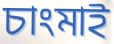
চাংমাই